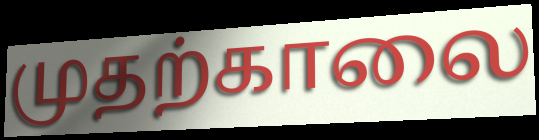
முதற்காலை